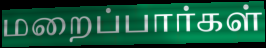
மறைப்பார்கள்